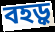
বহড়ু